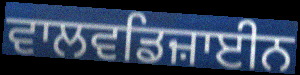
ਵਾਲਵਡਿਜ਼ਾਈਨ